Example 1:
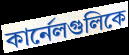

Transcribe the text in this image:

কার্নেলগুলিকে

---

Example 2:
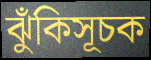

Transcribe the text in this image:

ঝুঁকিসূচক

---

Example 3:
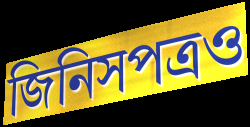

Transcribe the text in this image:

জিনিসপত্রও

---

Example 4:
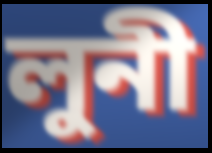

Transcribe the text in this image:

লুনী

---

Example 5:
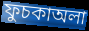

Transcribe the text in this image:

ফুচকাঅলা